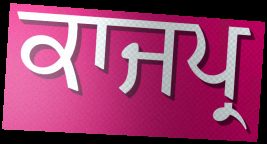
ਕਾਜਪ੍ਰ